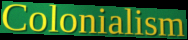
Colonialism